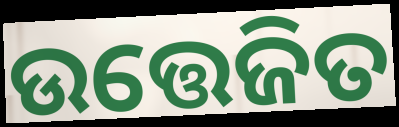
ଉତ୍ତେଜିତ